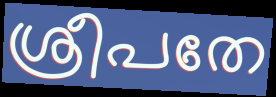
ശ്രീപതേ